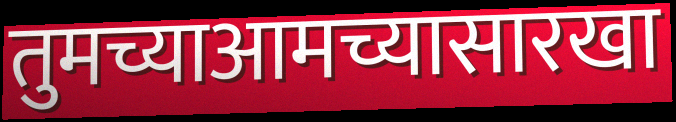
तुमच्याआमच्यासारखा